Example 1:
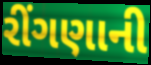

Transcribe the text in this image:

રીંગણાની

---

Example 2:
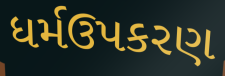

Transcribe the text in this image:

ધર્મઉપકરણ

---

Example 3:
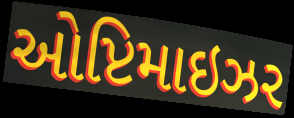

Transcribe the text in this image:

ઓપ્ટિમાઇઝર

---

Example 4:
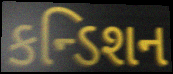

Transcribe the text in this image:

કન્ડિશન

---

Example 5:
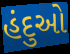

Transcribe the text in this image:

હંદુઓ